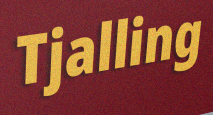
Tjalling